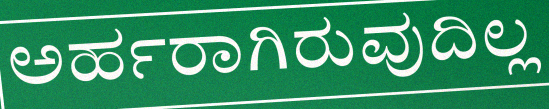
ಅರ್ಹರಾಗಿರುವುದಿಲ್ಲ